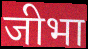
जीभा